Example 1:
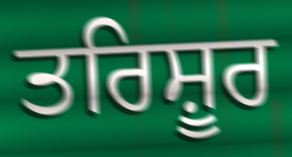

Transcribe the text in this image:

ਤਰਿਸ਼ੂਰ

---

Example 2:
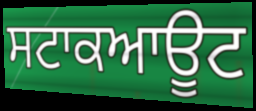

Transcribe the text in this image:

ਸਟਾਕਆਊਟ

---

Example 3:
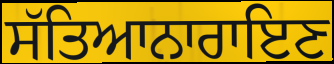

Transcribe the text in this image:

ਸੱਤਿਆਨਾਰਾਇਣ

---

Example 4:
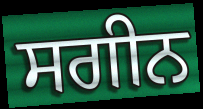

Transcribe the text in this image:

ਸਗੀਨ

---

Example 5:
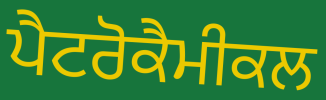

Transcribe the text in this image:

ਪੈਟਰੋਕੈਮੀਕਲ